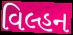
વિલ્હન